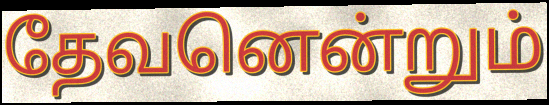
தேவனென்றும்